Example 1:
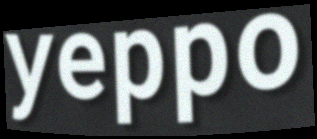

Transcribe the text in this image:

yeppo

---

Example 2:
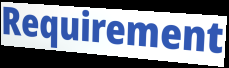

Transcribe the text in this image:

Requirement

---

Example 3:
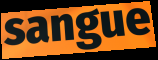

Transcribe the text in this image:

sangue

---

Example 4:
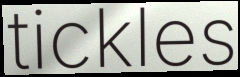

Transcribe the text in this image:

tickles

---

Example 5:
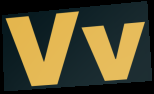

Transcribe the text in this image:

Vv